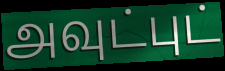
அவுட்புட்